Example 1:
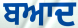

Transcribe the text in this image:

ਬਆਦ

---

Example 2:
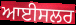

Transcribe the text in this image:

ਆਈਸਲਰ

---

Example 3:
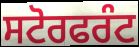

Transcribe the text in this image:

ਸਟੋਰਫਰੰਟ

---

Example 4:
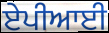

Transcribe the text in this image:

ਏਪੀਆਈ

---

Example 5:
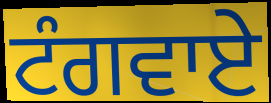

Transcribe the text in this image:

ਟੰਗਵਾਏ